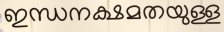
ഇന്ധനക്ഷമതയുള്ള